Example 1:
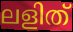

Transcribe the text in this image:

ലളിത്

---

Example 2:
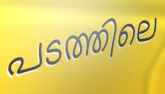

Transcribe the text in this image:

പടത്തിലെ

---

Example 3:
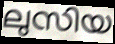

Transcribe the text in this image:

ലുസിയ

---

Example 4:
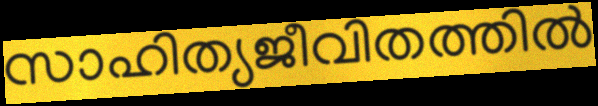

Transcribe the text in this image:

സാഹിത്യജീവിതത്തിൽ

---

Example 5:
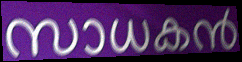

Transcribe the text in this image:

സാധകൻ